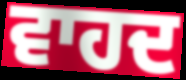
ਵਾਹਦ